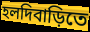
হলদিবাড়িতে